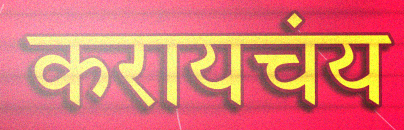
करायचंय